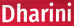
Dharini